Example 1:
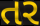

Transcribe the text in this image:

તર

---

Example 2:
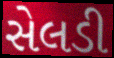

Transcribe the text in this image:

સેલડી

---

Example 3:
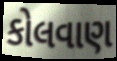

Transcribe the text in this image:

કોલવાણ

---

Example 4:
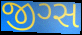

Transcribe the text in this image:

જીગ્સ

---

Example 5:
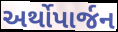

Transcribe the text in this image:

અર્થોપાર્જન